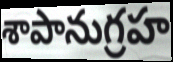
శాపానుగ్రహ